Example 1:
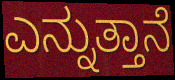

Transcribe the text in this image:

ಎನ್ನುತ್ತಾನೆ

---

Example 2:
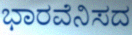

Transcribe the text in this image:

ಭಾರವೆನಿಸದ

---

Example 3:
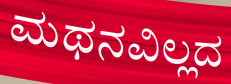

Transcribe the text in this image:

ಮಥನವಿಲ್ಲದ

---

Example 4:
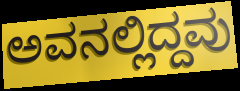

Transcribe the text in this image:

ಅವನಲ್ಲಿದ್ದವು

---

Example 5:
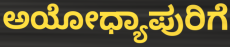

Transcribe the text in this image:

ಅಯೋಧ್ಯಾಪುರಿಗೆ